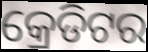
କ୍ରେଡିଟର